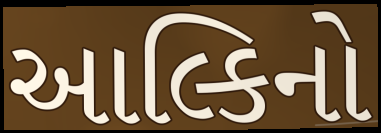
આલ્કિનો